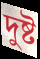
দুষ্ট